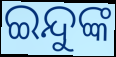
ଇନ୍ଦୁଙ୍କ